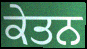
ਕੇਤਨ